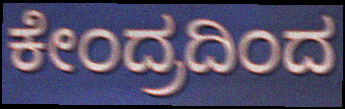
ಕೇಂದ್ರದಿಂದ